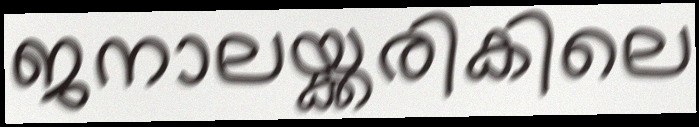
ജനാലയ്ക്കരികിലെ